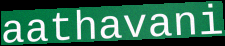
aathavani